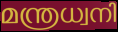
മന്ത്രധ്വനി